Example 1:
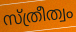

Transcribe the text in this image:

സ്ത്രീത്വം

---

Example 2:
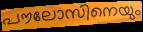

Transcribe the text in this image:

പൗലോസിനെയും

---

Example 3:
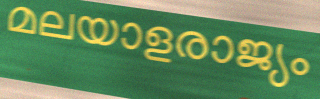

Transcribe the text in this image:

മലയാളരാജ്യം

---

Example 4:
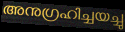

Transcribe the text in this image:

അനുഗ്രഹിച്ചയച്ചു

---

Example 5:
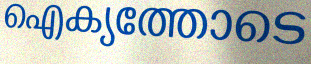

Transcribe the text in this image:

ഐക്യത്തോടെ